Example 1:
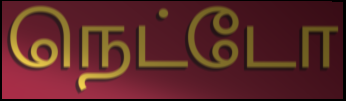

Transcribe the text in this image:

நெட்டோ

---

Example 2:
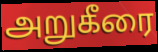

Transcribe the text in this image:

அறுகீரை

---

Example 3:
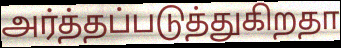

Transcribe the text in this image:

அர்த்தப்படுத்துகிறதா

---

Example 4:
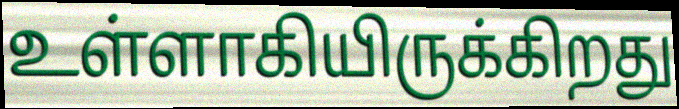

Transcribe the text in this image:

உள்ளாகியிருக்கிறது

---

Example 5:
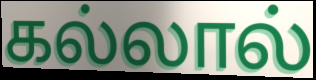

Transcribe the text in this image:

கல்லால்